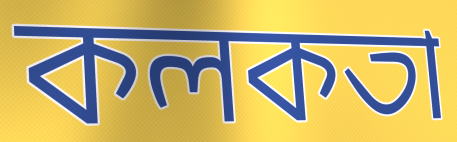
কলকতা